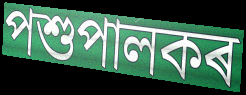
পশুপালকৰ